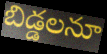
బిడ్డలనూ